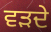
ਵੜਦੇ